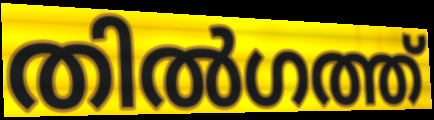
തിൽഗത്ത്